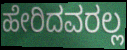
ಹೇರಿದವರಲ್ಲ